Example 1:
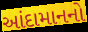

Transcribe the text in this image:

આંદામાનનો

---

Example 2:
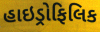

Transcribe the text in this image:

હાઇડ્રોફિલિક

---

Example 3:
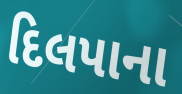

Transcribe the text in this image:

દિલપાના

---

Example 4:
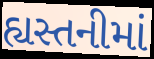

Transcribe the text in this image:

હ્યસ્તનીમાં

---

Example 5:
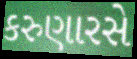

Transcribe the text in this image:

કરુણારસે